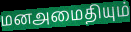
மனஅமைதியும்